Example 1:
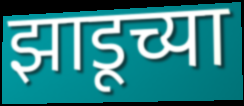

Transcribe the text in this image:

झाडूच्या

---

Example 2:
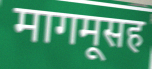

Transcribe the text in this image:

मागमूसह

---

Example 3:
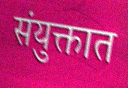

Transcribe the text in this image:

संयुक्तात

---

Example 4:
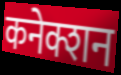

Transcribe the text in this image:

कनेक्शन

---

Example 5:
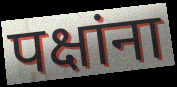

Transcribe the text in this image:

पक्षांना